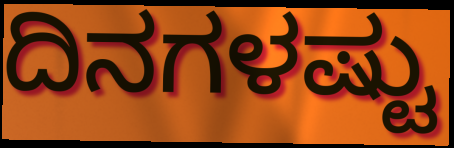
ದಿನಗಳಷ್ಟು